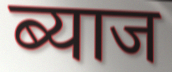
ब्याज